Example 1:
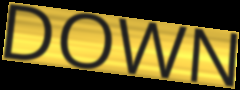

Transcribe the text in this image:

DOWN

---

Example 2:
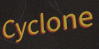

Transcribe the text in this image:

Cyclone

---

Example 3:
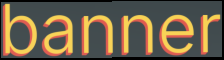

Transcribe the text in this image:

banner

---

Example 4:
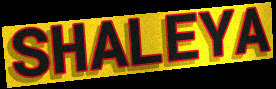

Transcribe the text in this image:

SHALEYA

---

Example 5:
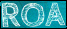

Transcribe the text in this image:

ROA